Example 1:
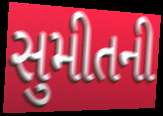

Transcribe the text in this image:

સુમીતની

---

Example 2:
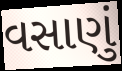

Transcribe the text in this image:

વસાણું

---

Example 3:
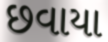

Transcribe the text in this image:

છવાયા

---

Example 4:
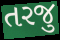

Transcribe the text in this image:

તરજુ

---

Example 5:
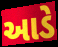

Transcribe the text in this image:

આડે